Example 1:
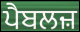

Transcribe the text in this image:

ਪੈਬਲਜ਼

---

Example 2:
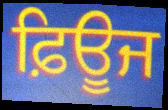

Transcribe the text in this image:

ਫ਼ਿਊਜ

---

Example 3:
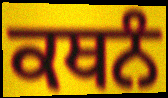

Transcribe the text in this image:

ਕਥਨੰ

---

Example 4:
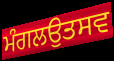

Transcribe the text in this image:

ਮੰਗਲਉਤਸਵ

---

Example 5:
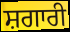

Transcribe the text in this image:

ਸ਼ਗਾਰੀ